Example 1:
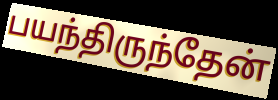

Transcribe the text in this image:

பயந்திருந்தேன்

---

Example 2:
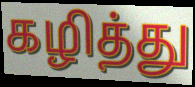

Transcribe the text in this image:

கழித்து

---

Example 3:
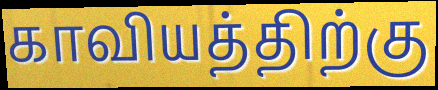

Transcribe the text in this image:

காவியத்திற்கு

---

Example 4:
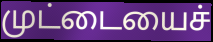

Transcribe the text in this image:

முட்டையைச்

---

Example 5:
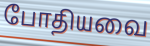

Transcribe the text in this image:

போதியவை